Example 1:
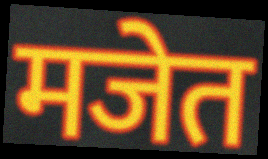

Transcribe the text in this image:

मजेत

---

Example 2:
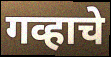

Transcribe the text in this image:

गव्हाचे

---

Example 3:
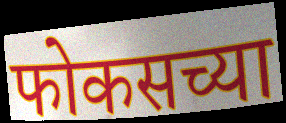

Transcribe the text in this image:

फोकसच्या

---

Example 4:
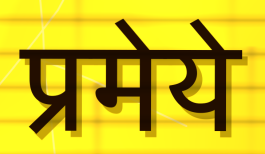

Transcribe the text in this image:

प्रमेये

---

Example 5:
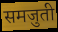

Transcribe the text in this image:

समजुती